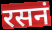
रसनं